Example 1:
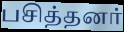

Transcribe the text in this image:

பசித்தனர்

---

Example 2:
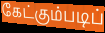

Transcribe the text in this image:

கேட்கும்படிப்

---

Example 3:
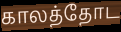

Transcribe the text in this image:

காலத்தோட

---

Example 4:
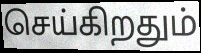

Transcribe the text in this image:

செய்கிறதும்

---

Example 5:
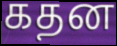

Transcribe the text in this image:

கதன